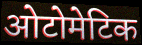
ओटोमेटिक